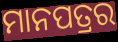
ମାନପତ୍ରର